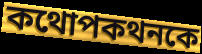
কথোপকথনকে